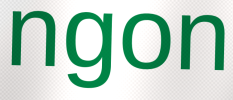
ngon